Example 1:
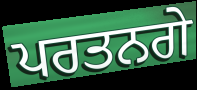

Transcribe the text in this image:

ਪਰਤਨਗੇ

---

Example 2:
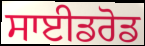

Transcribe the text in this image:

ਸਾਈਡਰੋਡ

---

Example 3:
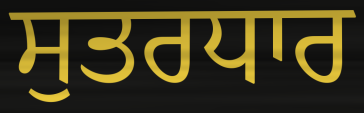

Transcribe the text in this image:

ਸੁਤਰਧਾਰ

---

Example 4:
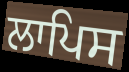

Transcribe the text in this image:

ਲਾਪਿਸ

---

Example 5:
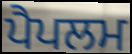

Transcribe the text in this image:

ਪੈਪਲਮ